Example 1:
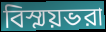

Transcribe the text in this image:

বিস্ময়ভরা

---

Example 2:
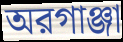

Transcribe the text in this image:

অরগাঞ্জা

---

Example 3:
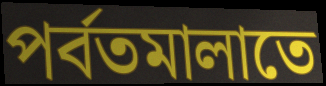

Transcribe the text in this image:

পর্বতমালাতে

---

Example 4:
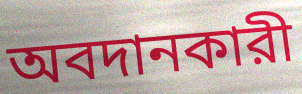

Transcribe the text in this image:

অবদানকারী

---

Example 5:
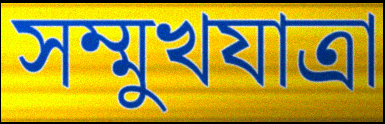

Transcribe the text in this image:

সম্মুখযাত্রা